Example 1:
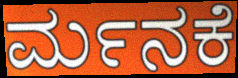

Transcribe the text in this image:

ರ್ಮನಕೆ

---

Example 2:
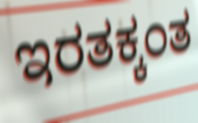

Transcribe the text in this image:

ಇರತಕ್ಕಂತ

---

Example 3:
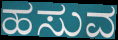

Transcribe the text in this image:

ಹಸುವ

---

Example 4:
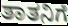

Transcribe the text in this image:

ತಾತನಿಗೆ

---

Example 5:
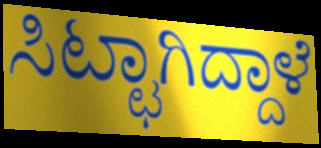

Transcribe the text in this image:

ಸಿಟ್ಟಾಗಿದ್ದಾಳೆ